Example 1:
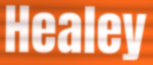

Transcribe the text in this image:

Healey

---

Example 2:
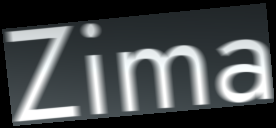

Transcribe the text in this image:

Zima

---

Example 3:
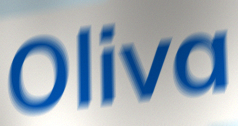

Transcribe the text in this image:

Oliva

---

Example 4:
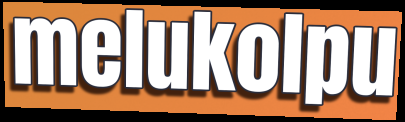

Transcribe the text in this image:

melukolpu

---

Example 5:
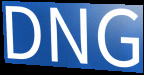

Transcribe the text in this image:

DNG